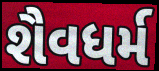
શૈવધર્મ